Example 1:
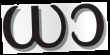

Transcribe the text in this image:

ധാ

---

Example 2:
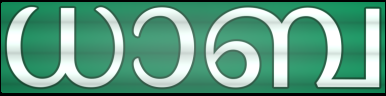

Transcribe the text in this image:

ധാബ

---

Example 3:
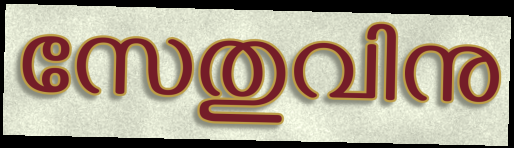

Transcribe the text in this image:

സേതുവിനു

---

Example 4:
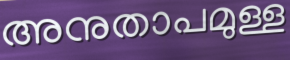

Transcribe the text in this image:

അനുതാപമുള്ള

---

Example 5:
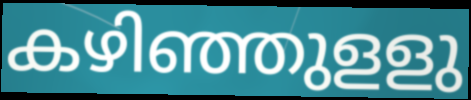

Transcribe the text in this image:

കഴിഞ്ഞുളളു